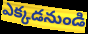
ఎక్కడనుండి